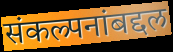
संकल्पनांबद्दल